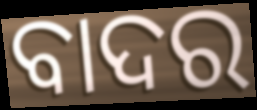
ବାଦର